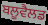
ਬਲੂਵੈਲਡ